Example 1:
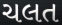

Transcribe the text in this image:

ચલત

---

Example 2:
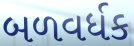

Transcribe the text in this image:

બળવર્ધક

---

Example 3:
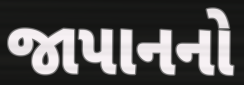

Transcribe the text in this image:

જાપાનનો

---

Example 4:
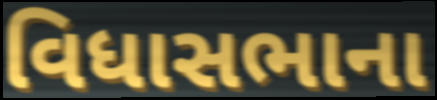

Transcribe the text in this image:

વિધાસભાના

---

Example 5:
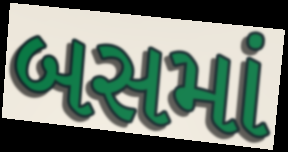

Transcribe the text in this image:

બસમાં